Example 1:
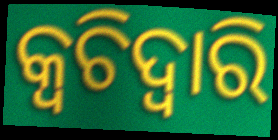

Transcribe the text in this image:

କ୍ଵଚିଦ୍ୱାରି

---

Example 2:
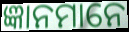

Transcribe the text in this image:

ଜ୍ଞାନମାନେ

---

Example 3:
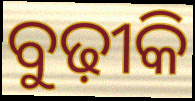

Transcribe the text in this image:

ବୁଢ଼ୀକି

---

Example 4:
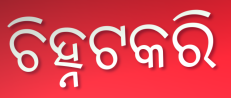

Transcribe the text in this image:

ଚିହ୍ନଟକରି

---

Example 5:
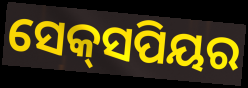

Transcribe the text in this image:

ସେକ୍‍ସପିୟର